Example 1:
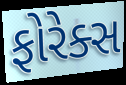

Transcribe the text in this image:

ફોરેક્સ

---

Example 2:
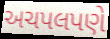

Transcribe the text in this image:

અચપલપણે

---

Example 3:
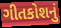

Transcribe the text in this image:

ગીતકોશનું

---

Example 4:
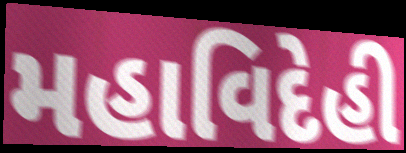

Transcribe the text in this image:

મહાવિદેહી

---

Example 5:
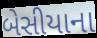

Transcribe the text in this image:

બેસીયાના